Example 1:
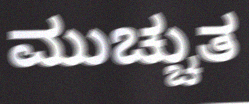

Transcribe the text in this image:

ಮುಚ್ಚುತ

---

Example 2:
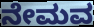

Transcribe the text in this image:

ನೇಮವ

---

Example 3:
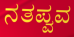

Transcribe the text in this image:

ನತಪ್ವವ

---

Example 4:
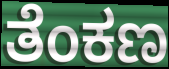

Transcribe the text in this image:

ತೆಂಕಣ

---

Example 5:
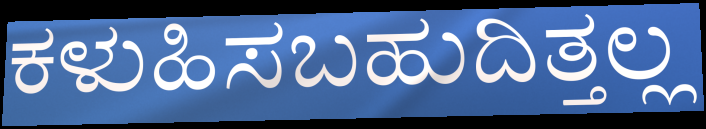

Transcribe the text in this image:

ಕಳುಹಿಸಬಹುದಿತ್ತಲ್ಲ